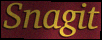
Snagit